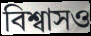
বিশ্বাসও